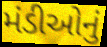
મંડીઓનું